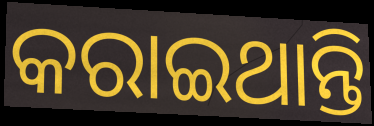
କରାଇଥାନ୍ତି